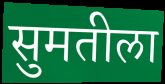
सुमतीला